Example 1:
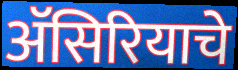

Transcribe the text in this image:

ॲसिरियाचे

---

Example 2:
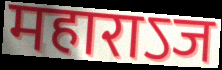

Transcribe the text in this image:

महाराऽज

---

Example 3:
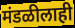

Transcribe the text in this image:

मंडळीलाही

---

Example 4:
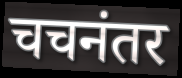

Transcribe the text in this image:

चचनंतर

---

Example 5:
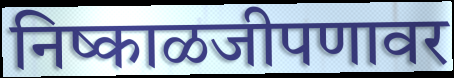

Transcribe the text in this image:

निष्काळजीपणावर